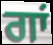
ਗਾਂ